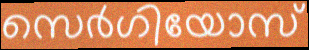
സെർഗിയോസ്